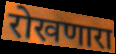
रोखणारा